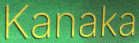
Kanaka